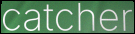
catcher